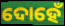
ଦୋହେଁ